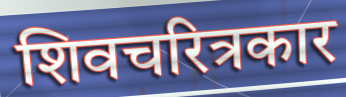
शिवचरित्रकार